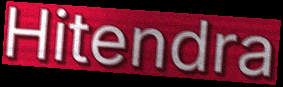
Hitendra